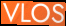
VLOS